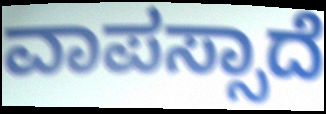
ವಾಪಸ್ಸಾದೆ